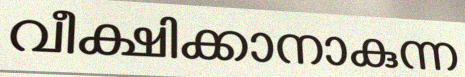
വീക്ഷിക്കാനാകുന്ന